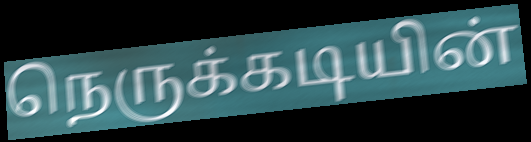
நெருக்கடியின்